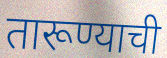
तारूण्याची